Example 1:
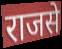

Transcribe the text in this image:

राजसे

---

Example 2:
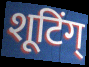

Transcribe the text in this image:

शूटिंग्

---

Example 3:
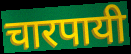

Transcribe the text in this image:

चारपायी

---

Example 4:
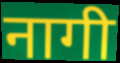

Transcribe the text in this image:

नागी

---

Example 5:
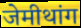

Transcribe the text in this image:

जेमीथांग